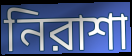
নিরাশা